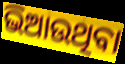
ଭିଆଉଥିବା